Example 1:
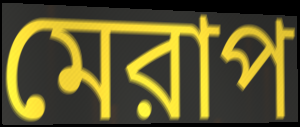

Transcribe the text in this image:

মেরাপ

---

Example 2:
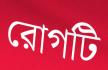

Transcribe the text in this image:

রোগটি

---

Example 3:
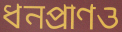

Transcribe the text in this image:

ধনপ্রাণও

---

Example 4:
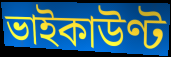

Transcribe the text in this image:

ভাইকাউণ্ট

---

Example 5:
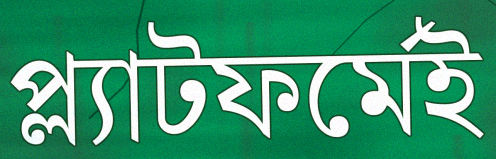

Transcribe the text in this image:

প্ল্যাটফর্মেই